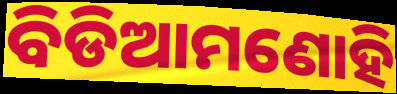
ବିଡିଆମଣୋହି